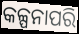
କଳ୍ପନାପରି